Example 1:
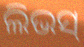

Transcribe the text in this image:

ଲିଭସ୍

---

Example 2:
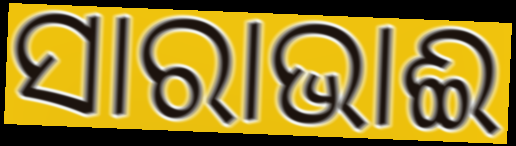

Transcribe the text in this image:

ସାରାଭାଈ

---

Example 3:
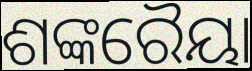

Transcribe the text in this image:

ଶଙ୍କରୈୟା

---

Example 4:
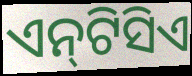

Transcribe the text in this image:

ଏନ୍‌ଟିସିଏ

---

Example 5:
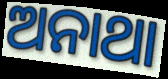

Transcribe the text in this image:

ଅନାଥା